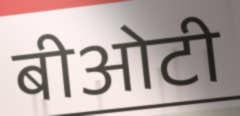
बीओटी